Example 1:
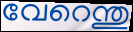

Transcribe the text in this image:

വേറെന്തു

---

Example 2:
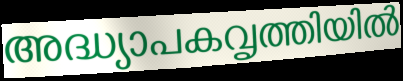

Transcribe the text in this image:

അദ്ധ്യാപകവൃത്തിയിൽ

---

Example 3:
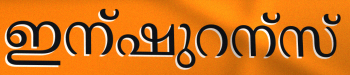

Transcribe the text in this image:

ഇന്ഷുറന്സ്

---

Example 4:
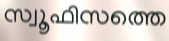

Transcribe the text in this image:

സ്വൂഫിസത്തെ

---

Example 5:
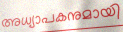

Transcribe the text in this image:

അധ്യാപകനുമായി